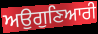
ਅਉਗੁਣਿਆਰੀ